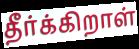
தீர்க்கிறாள்